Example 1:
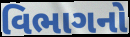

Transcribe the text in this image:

વિભાગનો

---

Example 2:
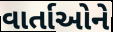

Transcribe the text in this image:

વાર્તાઓને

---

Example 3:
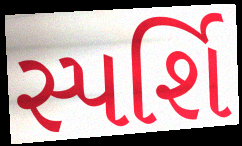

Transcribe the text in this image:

સ્પર્શિ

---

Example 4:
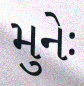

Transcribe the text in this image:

મુનેઃ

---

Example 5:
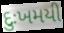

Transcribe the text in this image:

દુઃખમયી